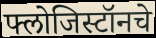
फ्लोजिस्टॉनचे